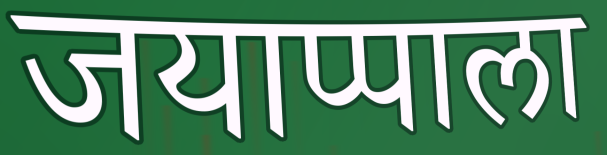
जयाप्पाला